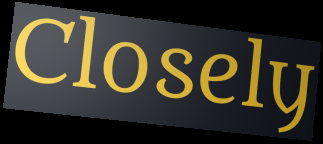
Closely